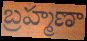
బ్రహ్మణా